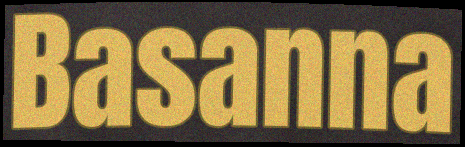
Basanna